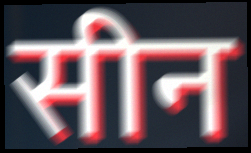
सीन